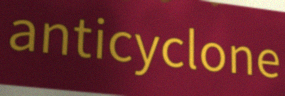
anticyclone